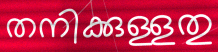
തനിക്കുള്ളതു